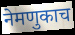
नेमणुकाच